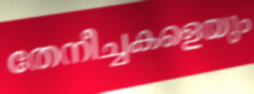
തേനീച്ചകളെയും